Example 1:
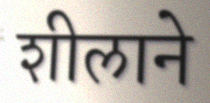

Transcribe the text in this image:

शीलाने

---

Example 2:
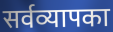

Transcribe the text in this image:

सर्वव्यापका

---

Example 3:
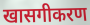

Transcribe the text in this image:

खासगीकरण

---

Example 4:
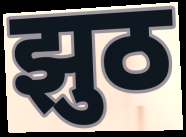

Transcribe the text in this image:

झुठ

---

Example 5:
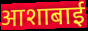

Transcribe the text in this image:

आशाबाई